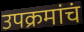
उपक्रमांचं